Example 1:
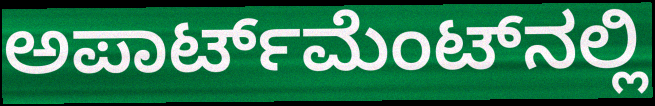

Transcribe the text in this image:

ಅಪಾರ್ಟ್‌ಮೆಂಟ್‌ನಲ್ಲಿ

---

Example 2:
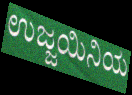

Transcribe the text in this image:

ಉಜ್ಜಯಿನಿಯ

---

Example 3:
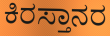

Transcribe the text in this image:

ಕಿರಸ್ತಾನರ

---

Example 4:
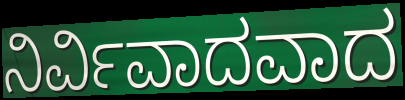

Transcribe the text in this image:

ನಿರ್ವಿವಾದವಾದ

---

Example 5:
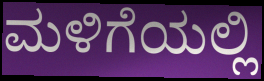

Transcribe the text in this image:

ಮಳಿಗೆಯಲ್ಲಿ